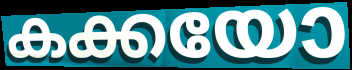
കക്കയോ